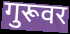
गुरूवर